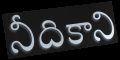
నీదికాని